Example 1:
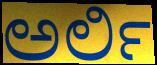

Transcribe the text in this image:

ಅರ್ಲಿ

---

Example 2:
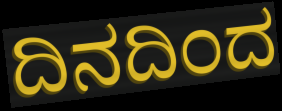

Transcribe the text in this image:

ದಿನದಿಂದ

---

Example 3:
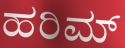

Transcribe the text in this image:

ಹರಿಮ್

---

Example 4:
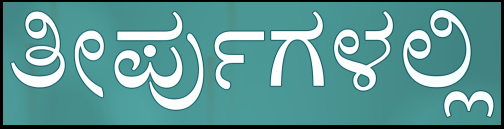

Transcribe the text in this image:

ತೀರ್ಪುಗಳಲ್ಲಿ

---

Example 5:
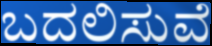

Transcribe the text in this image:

ಬದಲಿಸುವೆ